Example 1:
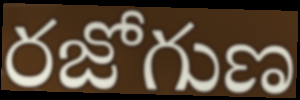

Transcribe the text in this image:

రజోగుణ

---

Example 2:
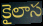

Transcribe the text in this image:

కైలాస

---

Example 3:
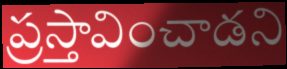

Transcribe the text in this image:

ప్రస్తావించాడని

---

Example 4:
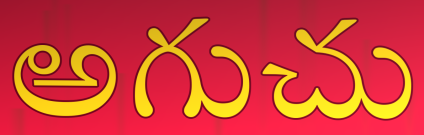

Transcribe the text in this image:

అగుచు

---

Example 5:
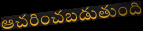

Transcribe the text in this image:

ఆచరించబడుతుంది